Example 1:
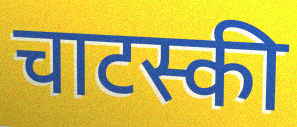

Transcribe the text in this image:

चाटस्की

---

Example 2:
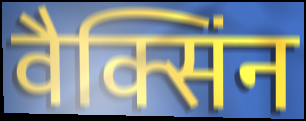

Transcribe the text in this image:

वैक्सिंन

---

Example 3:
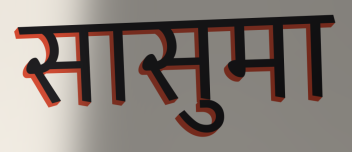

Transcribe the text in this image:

सासुमा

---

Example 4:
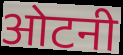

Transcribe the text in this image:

ओटनी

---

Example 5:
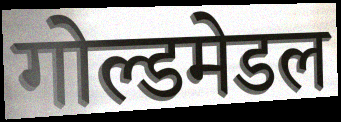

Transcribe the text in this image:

गोल्डमेडल